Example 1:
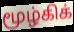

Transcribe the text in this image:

மூழ்கிக்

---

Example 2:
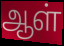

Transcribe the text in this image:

ஆள்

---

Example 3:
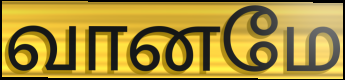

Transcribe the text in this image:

வானமே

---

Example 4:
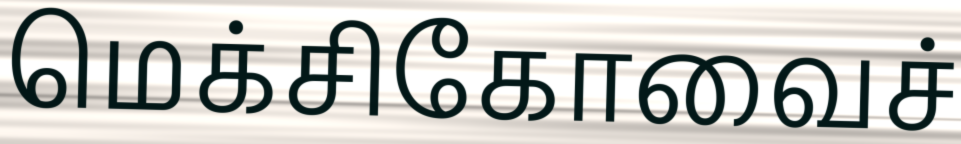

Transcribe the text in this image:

மெக்சிகோவைச்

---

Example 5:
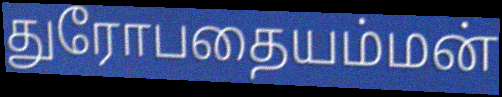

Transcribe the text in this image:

துரோபதையம்மன்